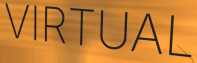
VIRTUAL